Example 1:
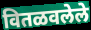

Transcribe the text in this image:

वितळवलेले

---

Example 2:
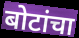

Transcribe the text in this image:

बोटांचा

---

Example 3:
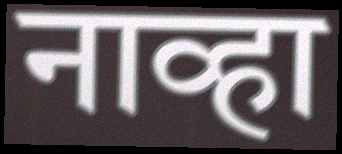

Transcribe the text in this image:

नाव्हा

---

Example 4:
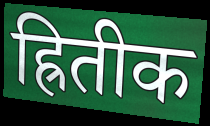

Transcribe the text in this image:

ह्रितीक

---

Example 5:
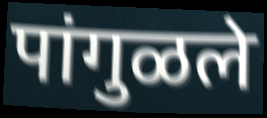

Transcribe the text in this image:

पांगुळले